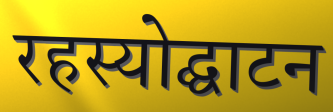
रहस्योद्घाटन